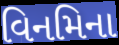
વિનમિના